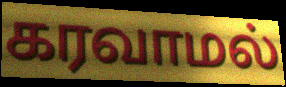
கரவாமல்